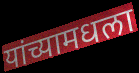
यांच्यामधला